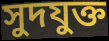
সুদযুক্ত